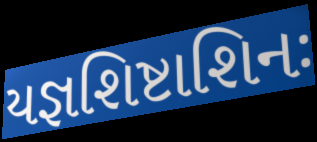
યજ્ઞશિષ્ટાશિનઃ